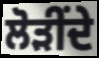
ਲੋੜੀਂਦੇ